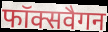
फॉक्सवैगन